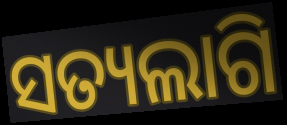
ସତ୍ୟଲାଗି